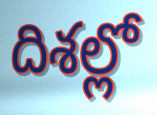
దిశల్లో